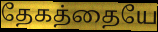
தேகத்தையே